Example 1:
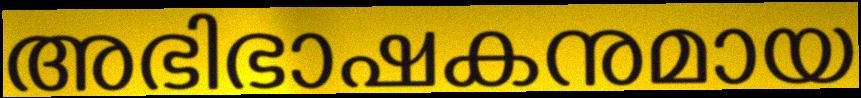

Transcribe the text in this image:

അഭിഭാഷകനുമായ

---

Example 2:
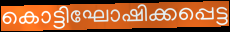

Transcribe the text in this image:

കൊട്ടിഘോഷിക്കപ്പെട്ട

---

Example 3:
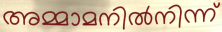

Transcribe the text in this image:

അമ്മാമനിൽനിന്ന്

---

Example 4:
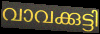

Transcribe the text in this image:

വാവക്കുട്ടി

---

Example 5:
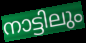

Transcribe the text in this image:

നാട്ടിലും